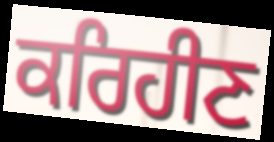
ਕਰਿਹੀਣ